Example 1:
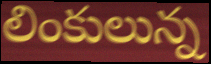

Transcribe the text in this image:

లింకులున్న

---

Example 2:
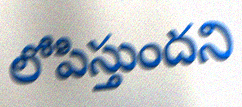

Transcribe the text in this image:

లోపిస్తుందని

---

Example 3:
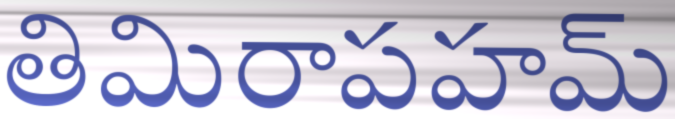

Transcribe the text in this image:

తిమిరాపహమ్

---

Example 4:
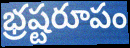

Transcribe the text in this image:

భ్రష్టరూపం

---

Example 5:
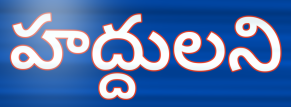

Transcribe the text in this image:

హద్దులని